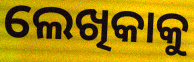
ଲେଖିକାକୁ